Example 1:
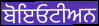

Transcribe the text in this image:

ਬੋਇਓਟੀਅਨ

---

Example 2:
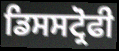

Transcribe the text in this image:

ਡਿਸਸਟ੍ਰੋਫੀ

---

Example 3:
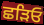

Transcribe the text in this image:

ਛੜਿਓ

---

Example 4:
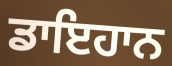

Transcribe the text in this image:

ਡਾਇਹਾਨ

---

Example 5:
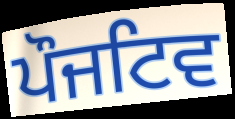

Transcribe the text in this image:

ਪੌਜਟਿਵ